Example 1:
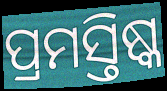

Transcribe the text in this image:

ପ୍ରମସ୍ତିଷ୍କ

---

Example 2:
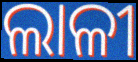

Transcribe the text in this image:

ଲାଳୀ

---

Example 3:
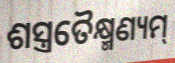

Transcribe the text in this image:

ଶସ୍ତ୍ରତୈକ୍ଷ୍ମଣ୍ୟମ୍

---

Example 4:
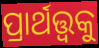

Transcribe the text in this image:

ପ୍ରାର୍ଥତ୍ତ୍ୱକୁ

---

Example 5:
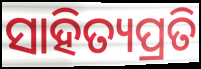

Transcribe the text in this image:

ସାହିତ୍ୟପ୍ରତି